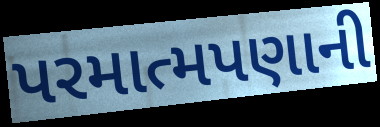
પરમાત્મપણાની